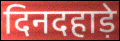
दिनदहाड़े